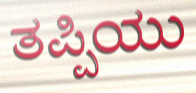
ತಪ್ಪಿಯು